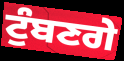
ਟੁੰਬਣਗੇ